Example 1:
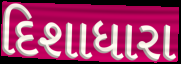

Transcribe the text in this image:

દિશાધારા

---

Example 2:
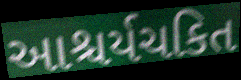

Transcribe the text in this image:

આશ્ચર્યચકિત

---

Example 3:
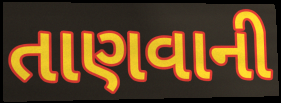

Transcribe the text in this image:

તાણવાની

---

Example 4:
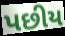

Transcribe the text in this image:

પછીય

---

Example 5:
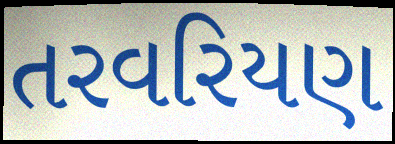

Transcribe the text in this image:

તરવરિયણ